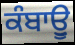
ਕੰਬਾਊੁ